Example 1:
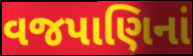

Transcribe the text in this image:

વજપાણિનાં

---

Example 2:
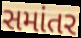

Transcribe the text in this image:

સમાંતર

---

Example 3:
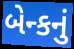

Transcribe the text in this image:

બેન્કનું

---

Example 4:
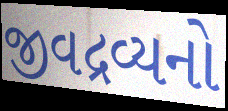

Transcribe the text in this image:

જીવદ્રવ્યનો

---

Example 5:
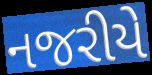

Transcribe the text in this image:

નજરીયે